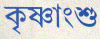
কৃষ্ণাংশু